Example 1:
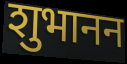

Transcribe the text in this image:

शुभानन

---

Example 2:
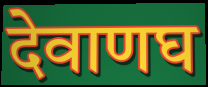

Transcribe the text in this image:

देवाणघ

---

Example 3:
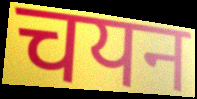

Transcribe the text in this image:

चयन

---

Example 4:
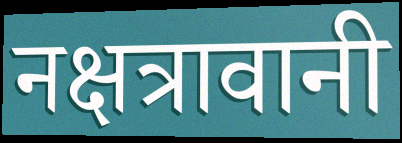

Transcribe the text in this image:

नक्षत्रावानी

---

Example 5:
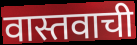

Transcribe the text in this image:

वास्तवाची